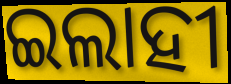
ଇଲାହୀ